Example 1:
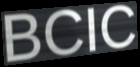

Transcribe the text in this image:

BCIC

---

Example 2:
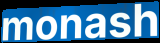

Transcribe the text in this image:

monash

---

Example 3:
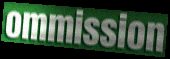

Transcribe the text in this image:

ommission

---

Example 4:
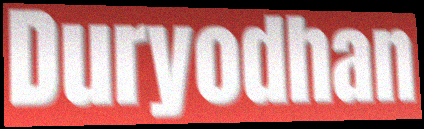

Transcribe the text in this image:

Duryodhan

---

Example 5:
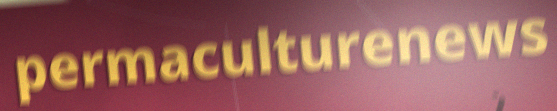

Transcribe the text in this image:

permaculturenews